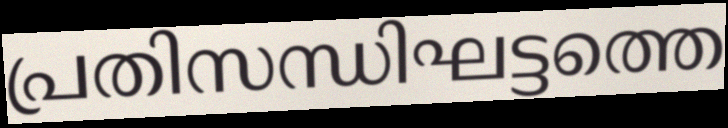
പ്രതിസന്ധിഘട്ടത്തെ